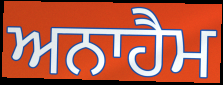
ਅਨਾਹੈਮ